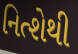
નિત્શેથી